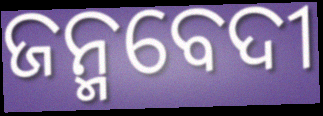
ଜନ୍ମବେଦୀ